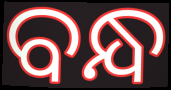
ବନ୍ଧ